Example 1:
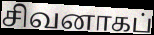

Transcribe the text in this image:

சிவனாகப்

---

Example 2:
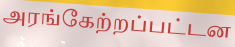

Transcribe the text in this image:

அரங்கேற்றப்பட்டன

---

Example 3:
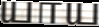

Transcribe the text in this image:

யாய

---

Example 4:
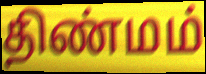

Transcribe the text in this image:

திண்மம்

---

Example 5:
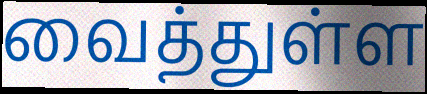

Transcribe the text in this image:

வைத்துள்ள